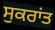
ਸੁਕਰਾਂਤ